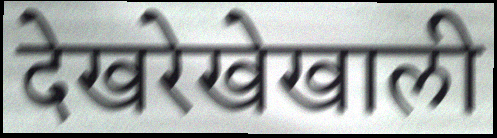
देखरेखेखाली